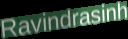
Ravindrasinh